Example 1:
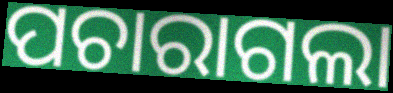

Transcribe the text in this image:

ପଚାରାଗଲା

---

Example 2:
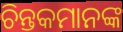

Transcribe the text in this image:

ଚିନ୍ତକମାନଙ୍କ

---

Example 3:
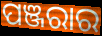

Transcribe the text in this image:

ପଞ୍ଜରାର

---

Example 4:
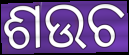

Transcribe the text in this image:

ଶଉଚ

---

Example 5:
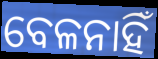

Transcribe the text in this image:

ବେଳନାହିଁ